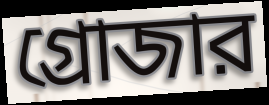
গ্রোজার